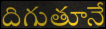
దిగుతూనే